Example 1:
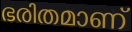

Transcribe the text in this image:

ഭരിതമാണ്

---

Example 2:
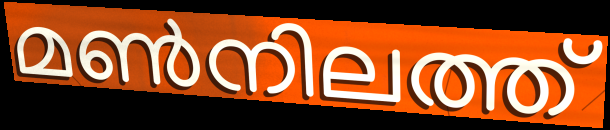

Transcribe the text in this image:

മൺനിലത്ത്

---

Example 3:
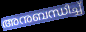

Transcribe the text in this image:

അനുബന്ധിച്ച്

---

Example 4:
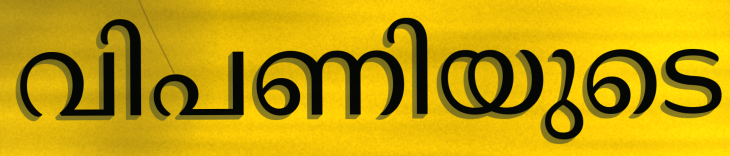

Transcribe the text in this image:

വിപണിയുടെ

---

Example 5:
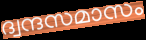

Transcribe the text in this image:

ദ്വന്ദസമാസം